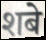
शबे